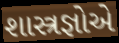
શાસ્ત્રજ્ઞોએ